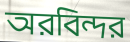
অরবিন্দর